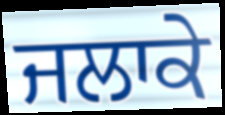
ਜਲਾਕੇ